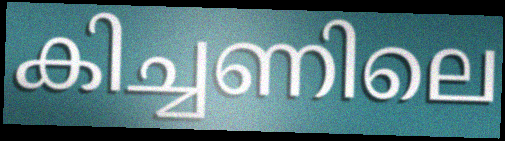
കിച്ചണിലെ